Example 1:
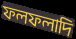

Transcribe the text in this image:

ফলফলাদি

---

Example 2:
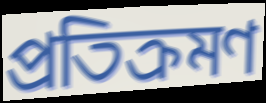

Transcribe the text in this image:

প্রতিক্রমণ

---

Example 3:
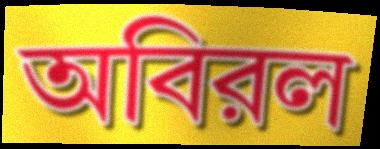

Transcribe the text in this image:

অবিরল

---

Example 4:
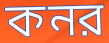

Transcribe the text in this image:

কনর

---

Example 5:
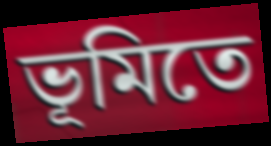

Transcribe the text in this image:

ভূমিতে